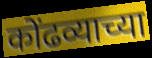
कोंढव्याच्या